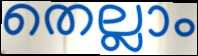
തെല്ലാം